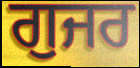
ਗੁਜਰ